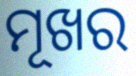
ମୂଖର